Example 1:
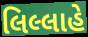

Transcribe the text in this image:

લિલ્લાહે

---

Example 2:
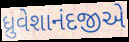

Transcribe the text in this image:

ધ્રુવેશાનંદજીએ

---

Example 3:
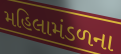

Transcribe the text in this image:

મહિલામંડળના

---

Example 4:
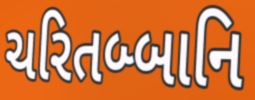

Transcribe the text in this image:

ચરિતબ્બાનિ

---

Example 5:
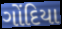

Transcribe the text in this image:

ગોંદિયા